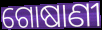
ଗୋଷାଣୀ